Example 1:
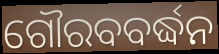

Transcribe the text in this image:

ଗୌରବବର୍ଦ୍ଧନ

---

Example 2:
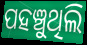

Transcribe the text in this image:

ପହଞ୍ଚୁଥିଲି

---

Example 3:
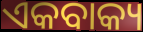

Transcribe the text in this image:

ଏକବାକ୍ୟ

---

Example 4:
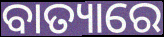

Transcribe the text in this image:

ବାତ୍ୟାରେ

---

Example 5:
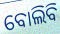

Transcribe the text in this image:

ବୋଲିବି